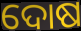
ଦୋଷ